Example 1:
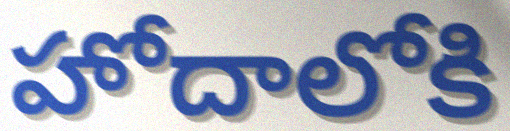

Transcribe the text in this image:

హోదాలోకి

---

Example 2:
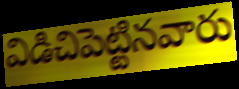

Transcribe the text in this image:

విడిచిపెట్టినవారు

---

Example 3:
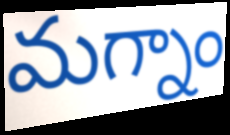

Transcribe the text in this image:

మగ్నాం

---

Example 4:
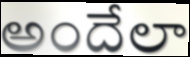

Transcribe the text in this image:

అందేలా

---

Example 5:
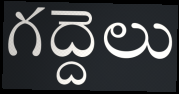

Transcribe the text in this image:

గద్దెలు